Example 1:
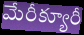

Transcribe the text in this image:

మేరీక్యూరీ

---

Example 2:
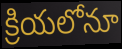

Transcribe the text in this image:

క్రియలోనూ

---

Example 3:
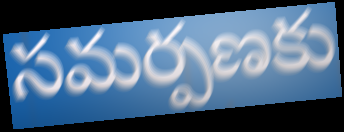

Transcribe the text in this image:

సమర్పణకు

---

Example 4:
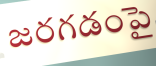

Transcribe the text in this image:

జరగడంపై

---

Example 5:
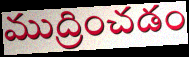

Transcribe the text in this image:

ముద్రించడం